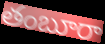
తంబూరా